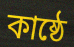
কাষ্ঠে